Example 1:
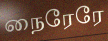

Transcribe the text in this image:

நைரேரே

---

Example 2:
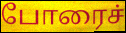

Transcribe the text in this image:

போரைச்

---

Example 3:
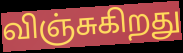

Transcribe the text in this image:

விஞ்சுகிறது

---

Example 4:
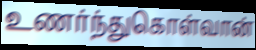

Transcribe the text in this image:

உணர்ந்துகொள்வான்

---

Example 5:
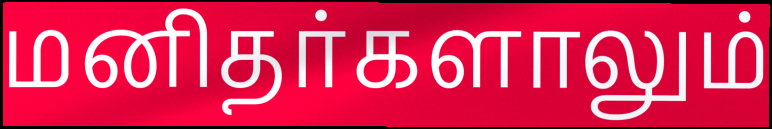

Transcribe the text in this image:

மனிதர்களாலும்